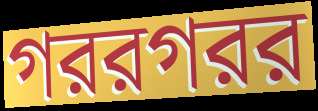
গররগরর